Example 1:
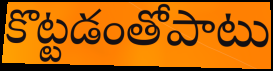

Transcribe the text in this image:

కొట్టడంతోపాటు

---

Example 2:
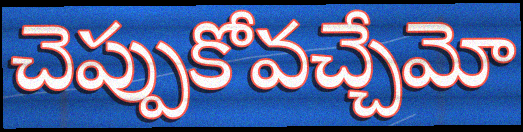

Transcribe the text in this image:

చెప్పుకోవచ్చేమో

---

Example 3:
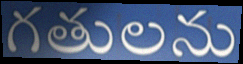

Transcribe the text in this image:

గతులను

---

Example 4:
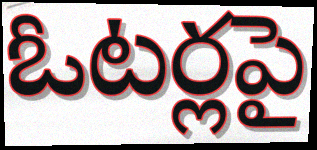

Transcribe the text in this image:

ఓటర్లపై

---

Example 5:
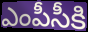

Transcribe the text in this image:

ఎంపీసీకి